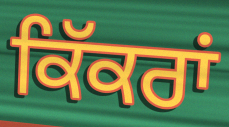
ਕਿੱਕਰਾਂ